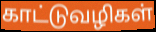
காட்டுவழிகள்